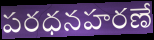
పరధనహరణే